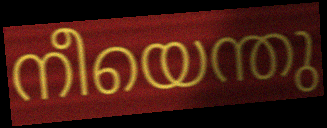
നീയെന്തു